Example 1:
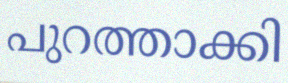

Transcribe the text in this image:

പുറത്താക്കി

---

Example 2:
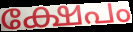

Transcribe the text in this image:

ക്ഷേപം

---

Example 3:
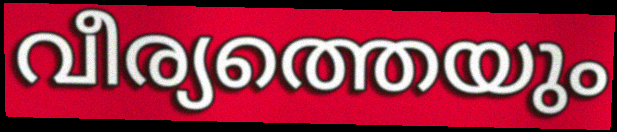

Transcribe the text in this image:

വീര്യത്തെയും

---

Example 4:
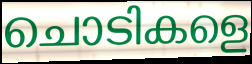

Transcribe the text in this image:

ചൊടികളെ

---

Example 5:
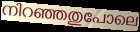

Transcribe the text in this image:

നിറഞ്ഞതുപോലെ